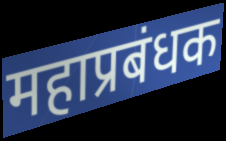
महाप्रबंधक